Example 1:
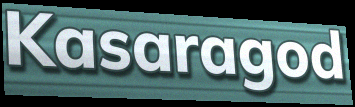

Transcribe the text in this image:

Kasaragod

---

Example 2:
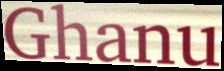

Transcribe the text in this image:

Ghanu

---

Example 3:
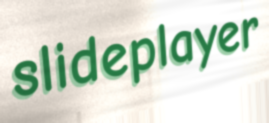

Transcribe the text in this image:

slideplayer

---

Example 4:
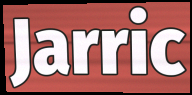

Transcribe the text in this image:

Jarric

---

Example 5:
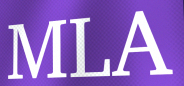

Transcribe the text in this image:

MLA